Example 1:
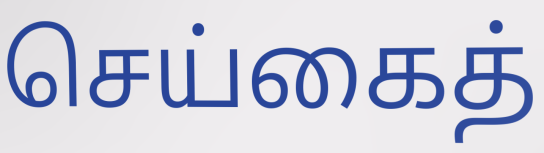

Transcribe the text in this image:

செய்கைத்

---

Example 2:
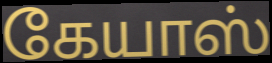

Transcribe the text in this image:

கேயாஸ்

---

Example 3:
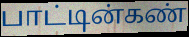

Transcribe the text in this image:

பாட்டின்கண்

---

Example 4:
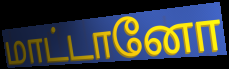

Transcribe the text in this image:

மாட்டானோ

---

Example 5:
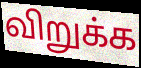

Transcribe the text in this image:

விறுக்க